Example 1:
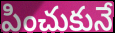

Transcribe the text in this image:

పించుకునే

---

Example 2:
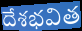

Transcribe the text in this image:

దేశభవిత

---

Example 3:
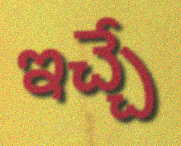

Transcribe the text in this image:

ఇచ్చే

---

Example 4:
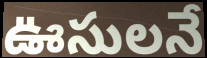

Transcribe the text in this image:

ఊసులనే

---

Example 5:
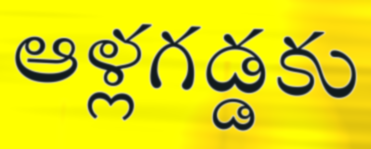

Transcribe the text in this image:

ఆళ్లగడ్డకు